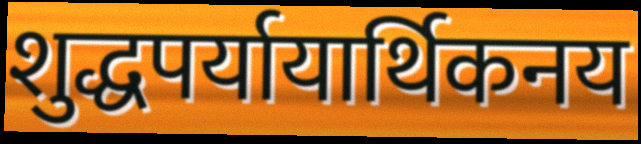
शुद्धपर्यायार्थिकनय